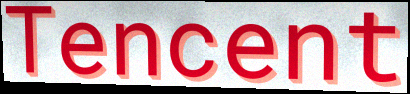
Tencent